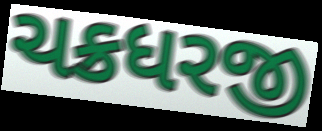
ચક્રધરજી